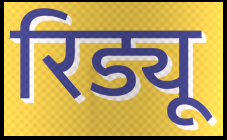
रिड्यू